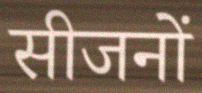
सीजनों